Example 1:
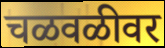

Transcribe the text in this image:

चळवळीवर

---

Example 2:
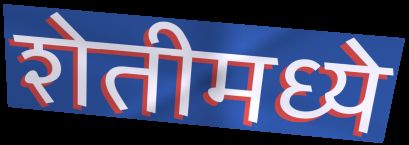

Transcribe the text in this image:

शेतीमध्ये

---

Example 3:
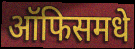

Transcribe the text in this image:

ऑफिसमधे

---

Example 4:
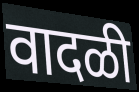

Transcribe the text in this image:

वादळी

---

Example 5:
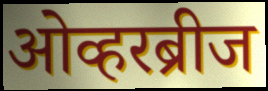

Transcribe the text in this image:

ओव्हरब्रीज